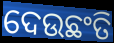
ଦେଉଛଂତି